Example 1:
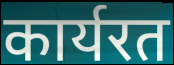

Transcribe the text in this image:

कार्यरत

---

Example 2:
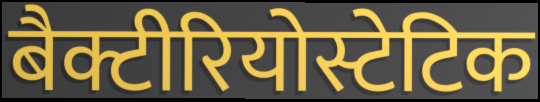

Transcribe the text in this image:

बैक्टीरियोस्टेटिक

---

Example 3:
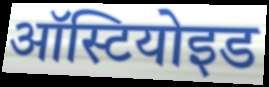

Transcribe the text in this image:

ऑस्टियोइड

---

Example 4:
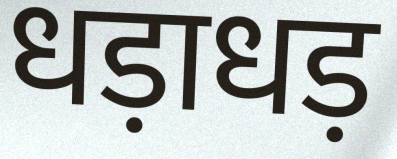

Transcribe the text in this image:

धड़ाधड़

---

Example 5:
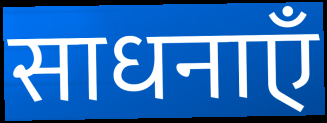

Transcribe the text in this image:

साधनाएँ